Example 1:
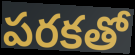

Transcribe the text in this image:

పరకతో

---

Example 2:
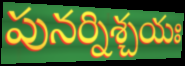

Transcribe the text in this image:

పునర్నిశ్చయః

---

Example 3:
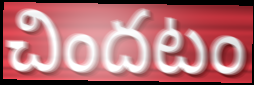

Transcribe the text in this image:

చిందటం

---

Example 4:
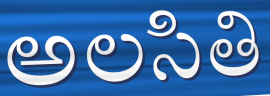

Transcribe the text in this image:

అలసితి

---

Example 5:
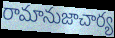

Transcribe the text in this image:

రామానుజాచార్య